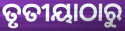
ତୃତୀୟାଠାରୁ